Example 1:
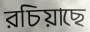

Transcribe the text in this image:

রচিয়াছে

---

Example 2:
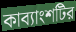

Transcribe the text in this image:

কাব্যাংশটির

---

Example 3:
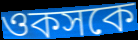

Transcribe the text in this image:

ওকসকে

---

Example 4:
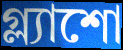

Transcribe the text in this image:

গ্ল্যাশো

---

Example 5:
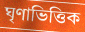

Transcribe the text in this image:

ঘৃণাভিত্তিক